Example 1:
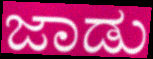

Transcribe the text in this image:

ಜಾಡು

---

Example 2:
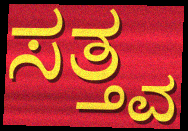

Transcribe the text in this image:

ಸತ್ತ್ವ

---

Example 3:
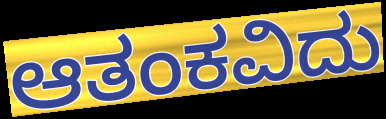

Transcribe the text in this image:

ಆತಂಕವಿದು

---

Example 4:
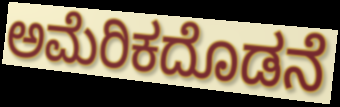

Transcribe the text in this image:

ಅಮೆರಿಕದೊಡನೆ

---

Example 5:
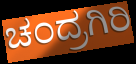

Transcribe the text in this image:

ಚಂದ್ರಗಿರಿ